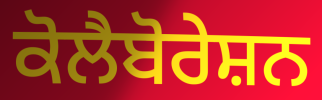
ਕੋਲੈਬੋਰੇਸ਼ਨ